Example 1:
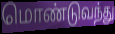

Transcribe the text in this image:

மொண்டுவந்து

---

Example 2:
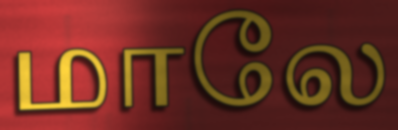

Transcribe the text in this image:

மாலே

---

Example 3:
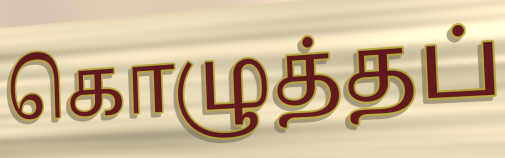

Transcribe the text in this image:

கொழுத்தப்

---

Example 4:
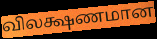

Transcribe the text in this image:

விலக்ஷணமான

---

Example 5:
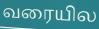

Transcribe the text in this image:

வரையில